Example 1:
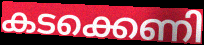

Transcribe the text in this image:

കടക്കെണി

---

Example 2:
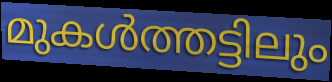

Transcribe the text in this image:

മുകൾത്തട്ടിലും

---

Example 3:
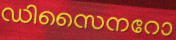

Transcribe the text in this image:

ഡിസൈനറോ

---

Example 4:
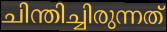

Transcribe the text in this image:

ചിന്തിച്ചിരുന്നത്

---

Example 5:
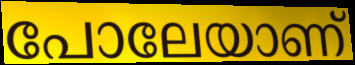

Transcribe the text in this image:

പോലേയാണ്